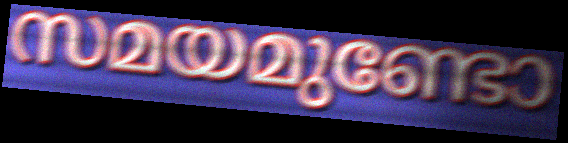
സമയമുണ്ടോ